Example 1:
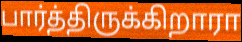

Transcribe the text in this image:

பார்த்திருக்கிறாரா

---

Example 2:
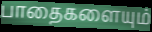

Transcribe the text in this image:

பாதைகளையும்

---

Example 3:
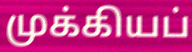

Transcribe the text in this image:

முக்கியப்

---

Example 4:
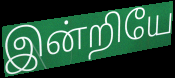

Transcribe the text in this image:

இன்றியே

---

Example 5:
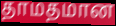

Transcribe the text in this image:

தாமதமான